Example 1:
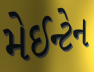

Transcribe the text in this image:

મેઈન્ટેન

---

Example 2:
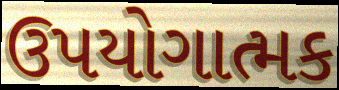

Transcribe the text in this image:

ઉપયોગાત્મક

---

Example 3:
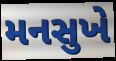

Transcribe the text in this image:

મનસુખે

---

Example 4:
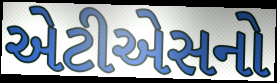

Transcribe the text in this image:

એટીએસનો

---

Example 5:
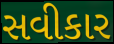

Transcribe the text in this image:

સવીકાર